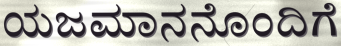
ಯಜಮಾನನೊಂದಿಗೆ